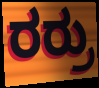
ರರ್ರು